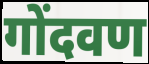
गोंदवण